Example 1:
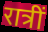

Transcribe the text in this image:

रात्रीं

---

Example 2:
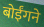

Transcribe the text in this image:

बोईंगने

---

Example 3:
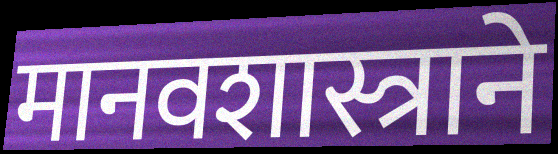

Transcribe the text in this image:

मानवशास्त्राने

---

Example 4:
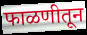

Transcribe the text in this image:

फाळणीतून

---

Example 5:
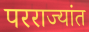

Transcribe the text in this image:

परराज्यांत